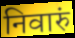
निवारुं